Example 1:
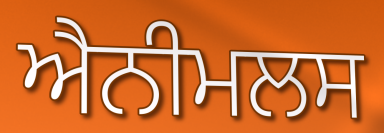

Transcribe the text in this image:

ਐਨੀਮਲਸ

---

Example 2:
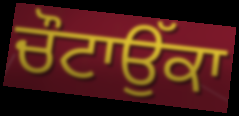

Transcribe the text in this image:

ਚੌਟਾਉੱਕਾ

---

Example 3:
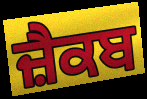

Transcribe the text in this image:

ਜ਼ੈਕਬ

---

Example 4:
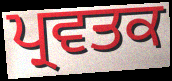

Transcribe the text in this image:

ਪ੍ਰਵਤਕ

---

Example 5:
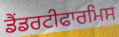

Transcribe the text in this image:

ਡੈਂਡਰਟੀਫਾਰਮਿਸ